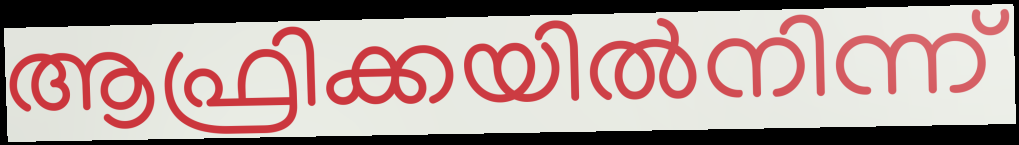
ആഫ്രിക്കയിൽനിന്ന്